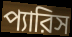
প্যারিস